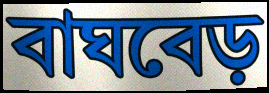
বাঘবেড়